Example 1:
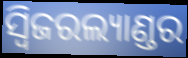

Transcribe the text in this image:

ସ୍ୱିଜରଲ୍ୟାଣ୍ଡର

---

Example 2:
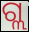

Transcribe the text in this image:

ଗ୍ଲ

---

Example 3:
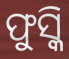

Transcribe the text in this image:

ଫୁସ୍କି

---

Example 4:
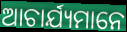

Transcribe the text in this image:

ଆଚାର୍ଯ୍ୟମାନେ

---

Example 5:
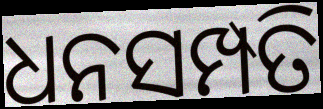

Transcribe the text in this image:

ଧନସମ୍ପତି